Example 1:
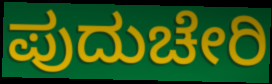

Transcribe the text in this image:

ಪುದುಚೇರಿ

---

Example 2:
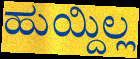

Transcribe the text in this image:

ಹುಯ್ದಿಲ್ಲ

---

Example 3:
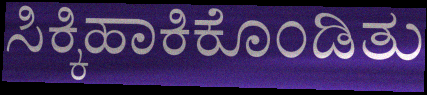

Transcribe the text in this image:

ಸಿಕ್ಕಿಹಾಕಿಕೊಂಡಿತು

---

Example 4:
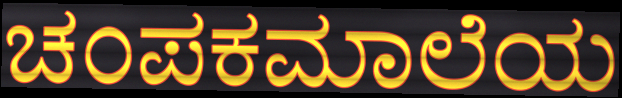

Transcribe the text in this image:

ಚಂಪಕಮಾಲೆಯ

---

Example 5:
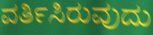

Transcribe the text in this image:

ವರ್ತಿಸಿರುವುದು